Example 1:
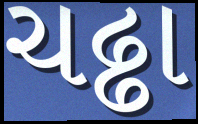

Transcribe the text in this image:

ચઢ્ઢા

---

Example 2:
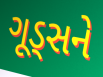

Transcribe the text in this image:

ગૂડ્સને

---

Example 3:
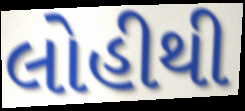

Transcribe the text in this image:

લોહીથી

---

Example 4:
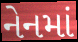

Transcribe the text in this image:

નેનમાં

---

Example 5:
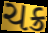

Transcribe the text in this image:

ચક્ર